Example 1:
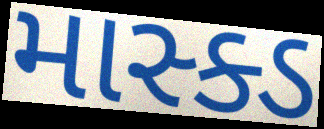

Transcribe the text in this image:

માસ્ક્ડ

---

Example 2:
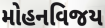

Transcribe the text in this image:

મોહનવિજય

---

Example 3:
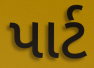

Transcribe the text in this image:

પાર્ટ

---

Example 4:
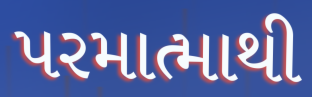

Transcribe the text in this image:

પરમાત્માથી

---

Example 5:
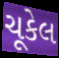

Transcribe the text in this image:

ચૂકેલ